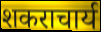
शकराचार्य